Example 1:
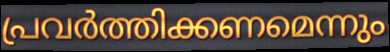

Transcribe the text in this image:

പ്രവർത്തിക്കണമെന്നും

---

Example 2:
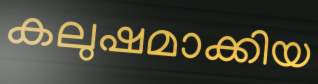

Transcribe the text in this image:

കലുഷമാക്കിയ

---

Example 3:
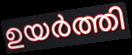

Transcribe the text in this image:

ഉയർത്തി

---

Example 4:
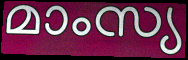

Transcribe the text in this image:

മാംസ്യ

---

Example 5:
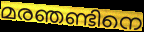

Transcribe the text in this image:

മരഞണ്ടിനെ